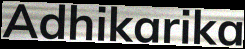
Adhikarika